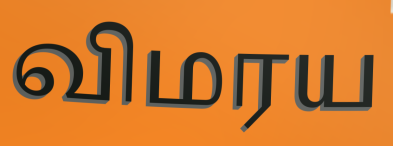
விமரய